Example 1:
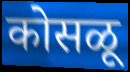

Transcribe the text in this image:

कोसळू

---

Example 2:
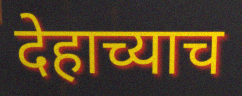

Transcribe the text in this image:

देहाच्याच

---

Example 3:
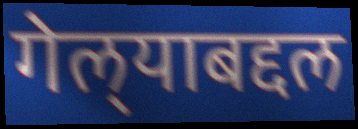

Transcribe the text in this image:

गेल्याबद्दल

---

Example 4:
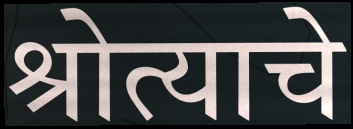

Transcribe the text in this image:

श्रोत्याचे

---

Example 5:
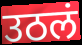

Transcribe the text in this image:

उठलं